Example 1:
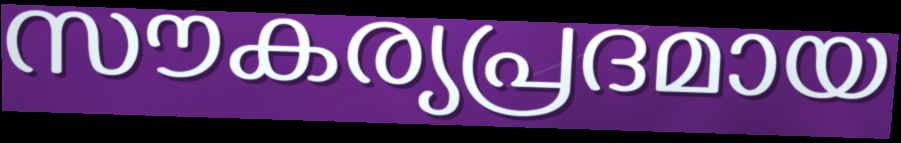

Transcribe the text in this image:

സൗകര്യപ്രദമായ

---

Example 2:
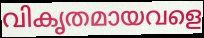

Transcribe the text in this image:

വികൃതമായവളെ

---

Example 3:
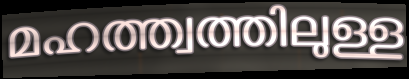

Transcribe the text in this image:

മഹത്ത്വത്തിലുള്ള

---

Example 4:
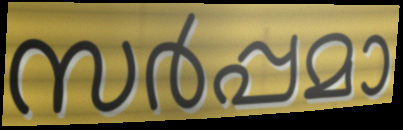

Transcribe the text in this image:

സർപ്പമാ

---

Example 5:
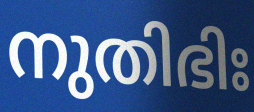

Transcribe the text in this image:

നുതിഭിഃ